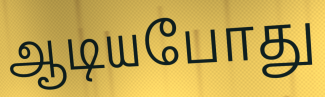
ஆடியபோது